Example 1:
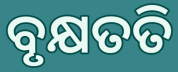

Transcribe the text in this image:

ବୃକ୍ଷତତି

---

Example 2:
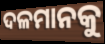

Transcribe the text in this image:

ଦଳମାନକୁ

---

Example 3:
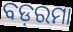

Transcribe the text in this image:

ବଡ଼ରମା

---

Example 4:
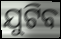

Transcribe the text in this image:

ଯୁଟିବ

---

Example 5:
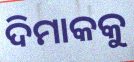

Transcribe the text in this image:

ଦିମାକକୁ